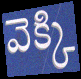
వెక్కి